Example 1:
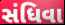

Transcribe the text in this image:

સંધિવા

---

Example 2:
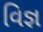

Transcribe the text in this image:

વિજ્ઞ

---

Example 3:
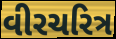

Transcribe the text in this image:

વીરચરિત્ર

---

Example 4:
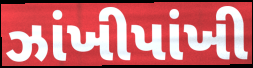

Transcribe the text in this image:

ઝાંખીપાંખી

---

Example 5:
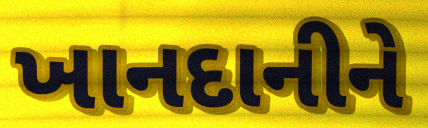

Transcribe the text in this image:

ખાનદાનીને